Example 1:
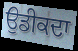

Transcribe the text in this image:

ਉਡੀਕਦਾ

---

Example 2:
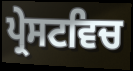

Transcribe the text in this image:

ਪ੍ਰੇਸਟਵਿਚ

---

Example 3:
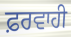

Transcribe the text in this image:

ਫ਼ਰਵਾਹੀ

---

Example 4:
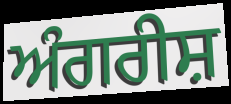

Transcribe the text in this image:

ਅੰਗਰੀਸ਼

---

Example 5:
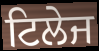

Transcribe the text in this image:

ਟਿਲੇਜ